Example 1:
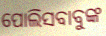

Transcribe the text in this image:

ପୋଲିସବାବୁଙ୍କ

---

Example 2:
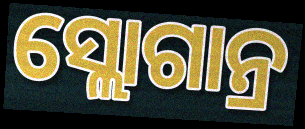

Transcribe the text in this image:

ସ୍ଲୋଗାନ୍ର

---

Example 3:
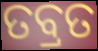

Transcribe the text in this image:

ତବ୍ରତ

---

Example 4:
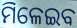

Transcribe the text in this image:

ମିଳେଇବ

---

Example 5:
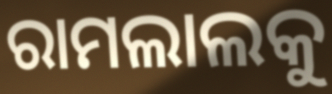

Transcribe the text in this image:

ରାମଲାଲକୁ